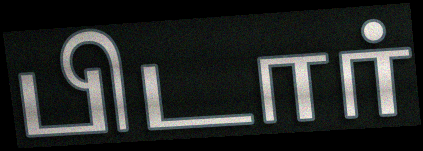
பிடார்